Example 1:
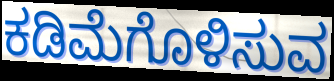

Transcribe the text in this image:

ಕಡಿಮೆಗೊಳಿಸುವ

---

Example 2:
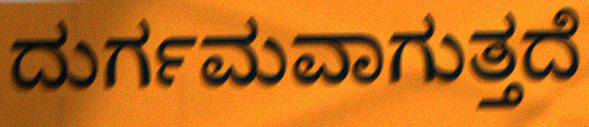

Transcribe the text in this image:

ದುರ್ಗಮವಾಗುತ್ತದೆ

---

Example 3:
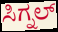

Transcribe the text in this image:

ಸಿಗ್ನಲ್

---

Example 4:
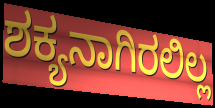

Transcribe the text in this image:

ಶಕ್ಯನಾಗಿರಲಿಲ್ಲ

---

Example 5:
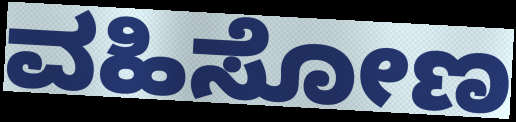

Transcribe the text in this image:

ವಹಿಸೋಣ